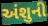
અંશુની